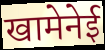
खामेनेई